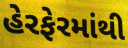
હેરફેરમાંથી